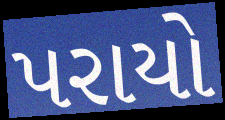
પરાયો